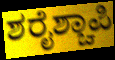
ಶರೈಶ್ಚಾಪಿ